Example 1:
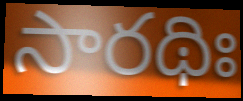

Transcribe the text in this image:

సారథిః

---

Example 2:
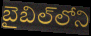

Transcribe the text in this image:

బైబిల్‌లోని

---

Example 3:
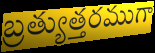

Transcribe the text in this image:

బ్రత్యుత్తరముగా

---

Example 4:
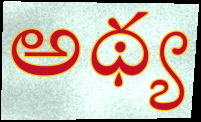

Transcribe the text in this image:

అథ్య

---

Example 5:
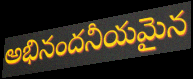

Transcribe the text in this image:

అభినందనీయమైన